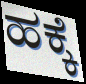
ಹಕ್ಕೆ